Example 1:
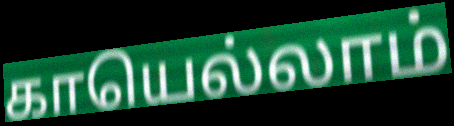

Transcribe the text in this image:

காயெல்லாம்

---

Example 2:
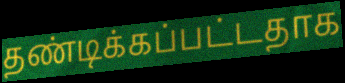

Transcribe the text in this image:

தண்டிக்கப்பட்டதாக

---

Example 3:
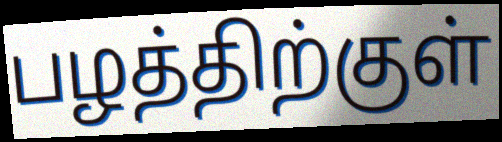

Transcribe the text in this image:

பழத்திற்குள்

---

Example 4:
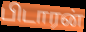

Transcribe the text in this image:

பிடாரன்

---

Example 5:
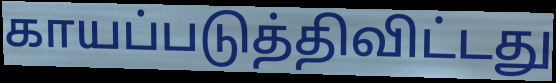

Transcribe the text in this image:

காயப்படுத்திவிட்டது